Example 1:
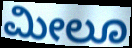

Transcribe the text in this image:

ಮೀಲೂ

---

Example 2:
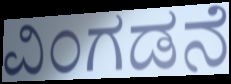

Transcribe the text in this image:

ವಿಂಗಡನೆ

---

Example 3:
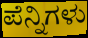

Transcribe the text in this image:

ಪೆನ್ನಿಗಳು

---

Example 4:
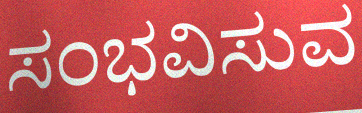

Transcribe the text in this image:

ಸಂಭವಿಸುವ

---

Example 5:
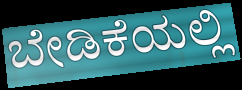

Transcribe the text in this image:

ಬೇಡಿಕೆಯಲ್ಲಿ